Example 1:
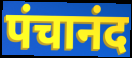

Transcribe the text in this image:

पंचानंद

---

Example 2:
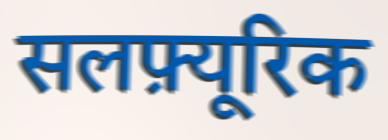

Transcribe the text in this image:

सलफ़्यूरिक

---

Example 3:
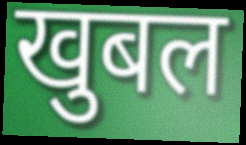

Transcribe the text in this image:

खुबल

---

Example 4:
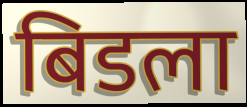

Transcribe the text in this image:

बिडला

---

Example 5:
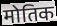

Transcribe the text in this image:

मोतिक